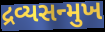
દ્રવ્યસન્મુખ